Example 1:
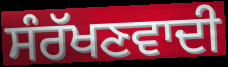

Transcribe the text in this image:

ਸੰਰੱਖਣਵਾਦੀ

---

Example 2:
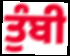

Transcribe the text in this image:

ਤੁੰਬੀ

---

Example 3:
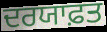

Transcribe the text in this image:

ਦਰਯਾਫ਼ਤ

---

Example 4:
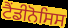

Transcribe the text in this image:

ਟੈਂਡੀਨੋਸਿਸ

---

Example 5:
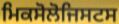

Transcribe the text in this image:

ਮਿਕਸੋਲੋਜਿਸਟਸ